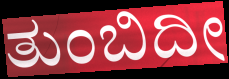
ತುಂಬಿದೀ